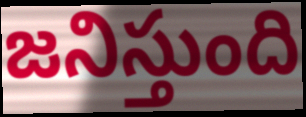
జనిస్తుంది